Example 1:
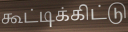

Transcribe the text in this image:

கூட்டிக்கிட்டு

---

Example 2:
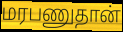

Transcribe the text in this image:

மரபணுதான்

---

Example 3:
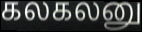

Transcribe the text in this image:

கலகலனு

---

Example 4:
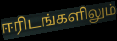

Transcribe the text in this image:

ஈரிடங்களிலும்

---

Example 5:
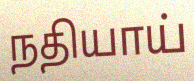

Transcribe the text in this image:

நதியாய்